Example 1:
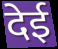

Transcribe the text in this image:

देई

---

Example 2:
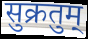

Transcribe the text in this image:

सुक्रतुम्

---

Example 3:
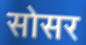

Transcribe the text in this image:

सोसर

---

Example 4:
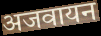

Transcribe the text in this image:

अजवायन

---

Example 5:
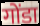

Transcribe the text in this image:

गोंडा